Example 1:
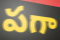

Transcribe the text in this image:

పగా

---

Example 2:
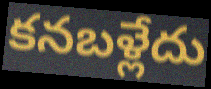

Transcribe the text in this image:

కనబళ్లేదు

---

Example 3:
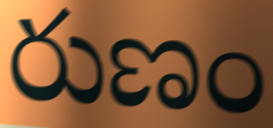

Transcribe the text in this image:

రుణం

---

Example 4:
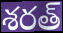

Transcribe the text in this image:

శరత్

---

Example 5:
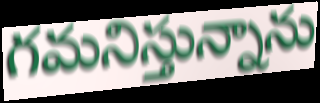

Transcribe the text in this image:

గమనిస్తున్నాను